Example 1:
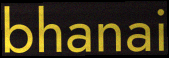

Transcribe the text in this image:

bhanai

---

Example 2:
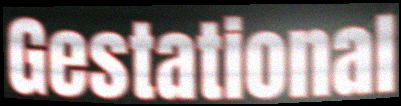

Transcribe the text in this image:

Gestational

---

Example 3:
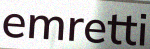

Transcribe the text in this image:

emretti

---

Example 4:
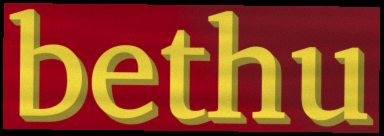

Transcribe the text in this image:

bethu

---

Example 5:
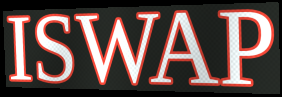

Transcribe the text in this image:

ISWAP